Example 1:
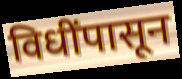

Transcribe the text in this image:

विधींपासून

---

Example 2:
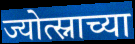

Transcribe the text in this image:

ज्योत्स्नाच्या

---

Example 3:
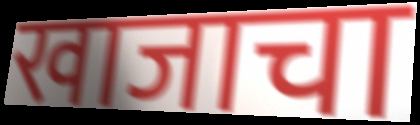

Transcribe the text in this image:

खाजाचा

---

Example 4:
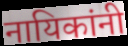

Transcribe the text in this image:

नायिकांनी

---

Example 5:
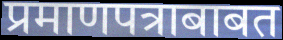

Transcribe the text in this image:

प्रमाणपत्राबाबत